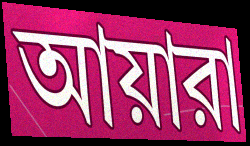
আয়ারা